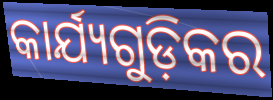
କାର୍ଯ୍ୟଗୁଡ଼ିକର